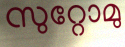
സുറ്റോമു